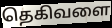
தெகிவளை